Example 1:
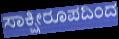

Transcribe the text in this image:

ಸಾಕ್ಷೀರೂಪದಿಂದ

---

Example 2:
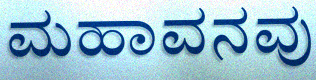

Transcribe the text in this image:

ಮಹಾವನವು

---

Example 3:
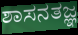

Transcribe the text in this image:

ಶಾಸನತಜ್ಞ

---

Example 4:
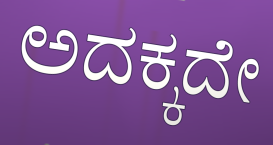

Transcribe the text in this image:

ಅದಕ್ಕದೇ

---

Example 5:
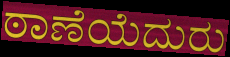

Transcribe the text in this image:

ಠಾಣೆಯೆದುರು